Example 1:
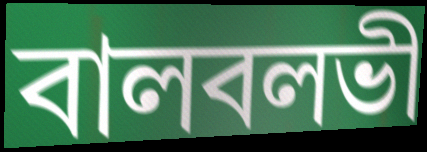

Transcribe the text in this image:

বালবলভী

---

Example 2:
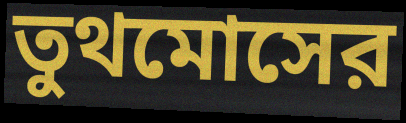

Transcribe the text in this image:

তুথমোসের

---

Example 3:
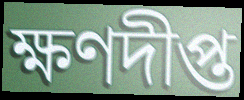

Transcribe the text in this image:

ক্ষণদীপ্ত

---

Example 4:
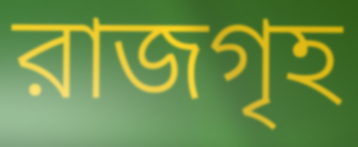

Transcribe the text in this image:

রাজগৃহ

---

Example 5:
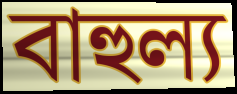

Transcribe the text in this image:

বাহুল্য